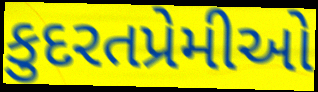
કુદરતપ્રેમીઓ